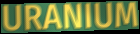
URANIUM